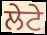
ਲੇਟੇ